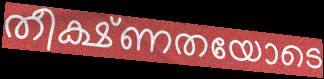
തീക്ഷ്ണതയോടെ